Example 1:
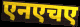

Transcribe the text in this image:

एनएचए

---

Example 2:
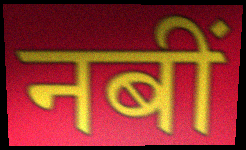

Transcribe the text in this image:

नबीं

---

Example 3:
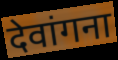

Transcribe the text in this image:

देवांगना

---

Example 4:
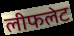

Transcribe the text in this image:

लीफलेट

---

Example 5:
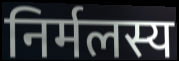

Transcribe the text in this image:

निर्मलस्य